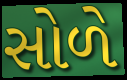
સોળે